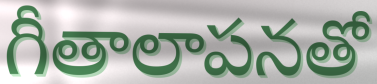
గీతాలాపనతో